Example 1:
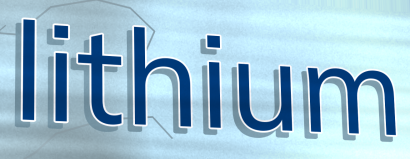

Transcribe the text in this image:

lithium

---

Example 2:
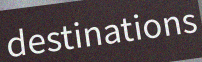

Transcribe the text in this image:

destinations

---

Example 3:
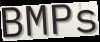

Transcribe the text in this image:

BMPs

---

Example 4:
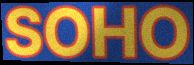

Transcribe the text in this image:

SOHO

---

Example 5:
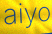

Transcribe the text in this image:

aiyo